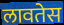
लावतेस